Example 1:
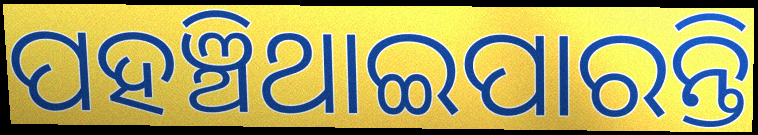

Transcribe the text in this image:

ପହଞ୍ଚିଥାଇପାରନ୍ତି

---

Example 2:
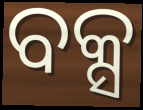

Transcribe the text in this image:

ବକ୍ସ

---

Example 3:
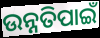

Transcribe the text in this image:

ଉନ୍ନତିପାଇଁ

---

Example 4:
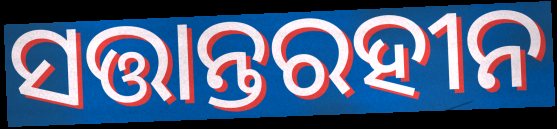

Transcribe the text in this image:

ସତ୍ତାନ୍ତରହୀନ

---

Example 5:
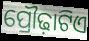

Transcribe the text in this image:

ପ୍ରୌଢ଼ାଟିଏ